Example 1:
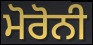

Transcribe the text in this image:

ਮੋਰੋਨੀ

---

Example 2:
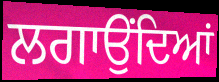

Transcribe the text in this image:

ਲਗਾਉੰਦਿਆਂ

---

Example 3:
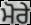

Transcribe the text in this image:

ਮੋਰੇ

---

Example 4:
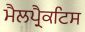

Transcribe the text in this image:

ਮੈਲਪ੍ਰੈਕਟਿਸ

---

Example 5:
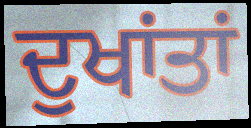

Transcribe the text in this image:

ਦੁਖਾਂਤਾਂ